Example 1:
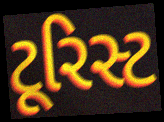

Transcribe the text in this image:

ટૂરિસ્ટ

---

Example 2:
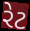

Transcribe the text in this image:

રેટ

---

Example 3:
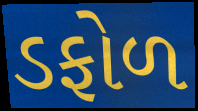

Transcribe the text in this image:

ડફોળ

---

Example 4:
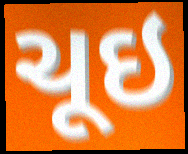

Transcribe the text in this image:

ચૂઇ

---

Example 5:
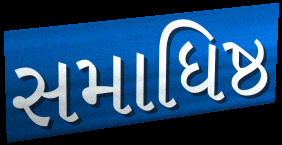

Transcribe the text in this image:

સમાધિષ્ઠ